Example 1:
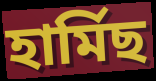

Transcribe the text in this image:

হাৰ্মিছ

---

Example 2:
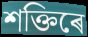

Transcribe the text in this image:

শক্তিৰে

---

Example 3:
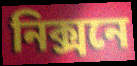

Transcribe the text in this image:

নিক্সনে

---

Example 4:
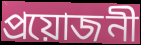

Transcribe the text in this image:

প্ৰয়োজনী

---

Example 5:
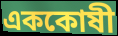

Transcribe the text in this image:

এককোষী